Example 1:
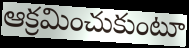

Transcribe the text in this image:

ఆక్రమించుకుంటూ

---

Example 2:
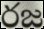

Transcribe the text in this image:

రజ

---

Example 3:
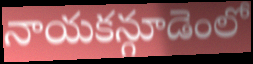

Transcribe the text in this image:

నాయకన్గూడెంలో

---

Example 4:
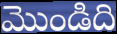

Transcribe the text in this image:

మొండిది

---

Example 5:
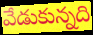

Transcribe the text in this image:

వేడుకున్నది